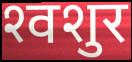
श्वशुर